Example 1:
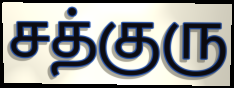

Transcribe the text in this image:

சத்குரு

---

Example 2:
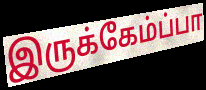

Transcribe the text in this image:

இருக்கேம்ப்பா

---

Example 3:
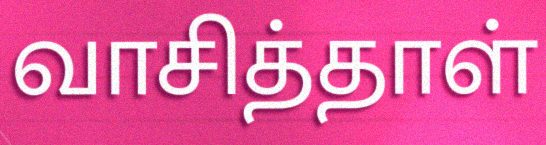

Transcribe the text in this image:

வாசித்தாள்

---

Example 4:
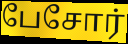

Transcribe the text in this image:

பேசோர்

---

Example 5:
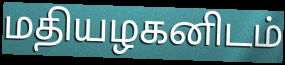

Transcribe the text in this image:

மதியழகனிடம்